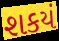
શકયં